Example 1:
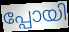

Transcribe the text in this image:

പ്പോയി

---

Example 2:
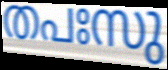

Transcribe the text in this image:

തപഃസു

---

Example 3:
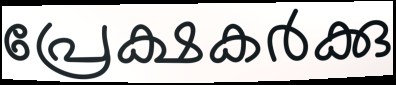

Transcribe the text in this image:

പ്രേക്ഷകർക്കു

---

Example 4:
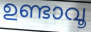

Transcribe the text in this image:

ഉണ്ടാവൂ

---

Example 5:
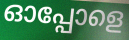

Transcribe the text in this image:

ഓപ്പോളെ